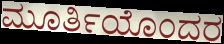
ಮೂರ್ತಿಯೊಂದರ